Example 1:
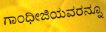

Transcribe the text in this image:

ಗಾಂಧೀಜಿಯವರನ್ನೂ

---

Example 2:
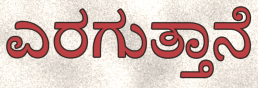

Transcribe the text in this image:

ಎರಗುತ್ತಾನೆ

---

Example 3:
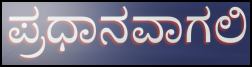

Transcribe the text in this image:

ಪ್ರಧಾನವಾಗಲಿ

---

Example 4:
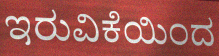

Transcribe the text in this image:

ಇರುವಿಕೆಯಿಂದ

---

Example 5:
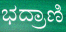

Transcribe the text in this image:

ಭದ್ರಾಣಿ